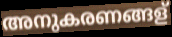
അനുകരണങ്ങള്